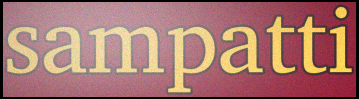
sampatti